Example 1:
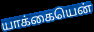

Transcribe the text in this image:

யாக்கையென்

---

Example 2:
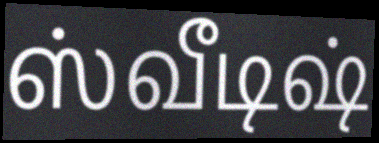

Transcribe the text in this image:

ஸ்வீடிஷ்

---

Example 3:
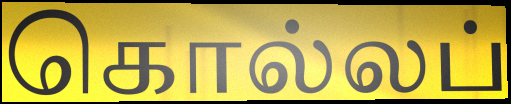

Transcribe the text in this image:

கொல்லப்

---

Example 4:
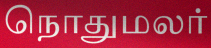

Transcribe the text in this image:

நொதுமலர்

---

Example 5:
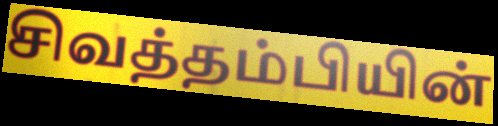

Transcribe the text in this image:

சிவத்தம்பியின்